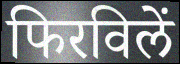
फिरविलें